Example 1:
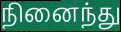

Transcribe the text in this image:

நினைந்து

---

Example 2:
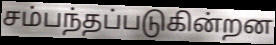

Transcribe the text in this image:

சம்பந்தப்படுகின்றன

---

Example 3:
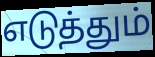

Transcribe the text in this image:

எடுத்தும்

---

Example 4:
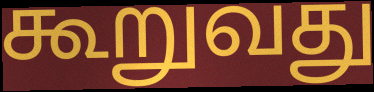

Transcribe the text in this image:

கூறுவது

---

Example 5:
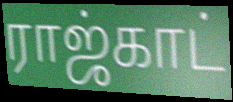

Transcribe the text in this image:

ராஜ்காட்